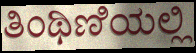
ತಿಂಥಿಣಿಯಲ್ಲಿ